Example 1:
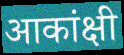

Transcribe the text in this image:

आकांक्षी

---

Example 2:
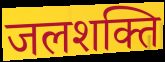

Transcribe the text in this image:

जलशक्ति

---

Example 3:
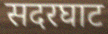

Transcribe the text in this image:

सदरघाट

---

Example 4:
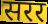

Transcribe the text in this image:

सरर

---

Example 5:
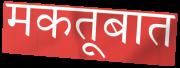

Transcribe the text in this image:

मकतूबात